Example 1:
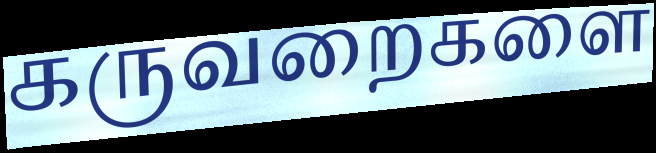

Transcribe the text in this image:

கருவறைகளை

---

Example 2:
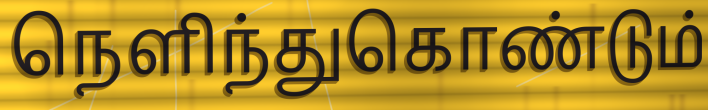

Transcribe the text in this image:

நெளிந்துகொண்டும்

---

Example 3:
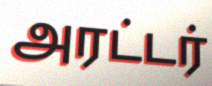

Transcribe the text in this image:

அரட்டர்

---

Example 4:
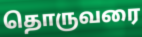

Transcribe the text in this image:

தொருவரை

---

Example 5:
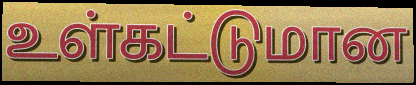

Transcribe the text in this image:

உள்கட்டுமான